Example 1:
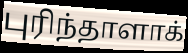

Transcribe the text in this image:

புரிந்தாளாக்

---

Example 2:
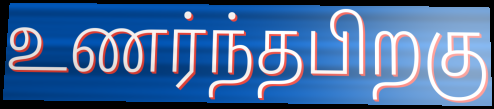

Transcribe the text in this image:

உணர்ந்தபிறகு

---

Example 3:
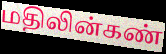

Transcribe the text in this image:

மதிலின்கண்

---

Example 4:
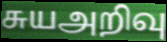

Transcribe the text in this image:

சுயஅறிவு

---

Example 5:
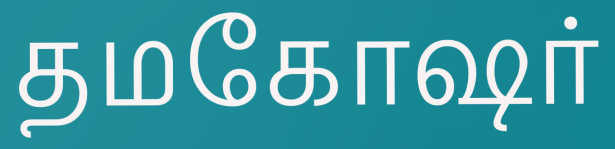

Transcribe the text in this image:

தமகோஷர்